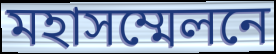
মহাসম্মেলনে